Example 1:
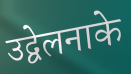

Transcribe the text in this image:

उद्वेलनाके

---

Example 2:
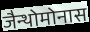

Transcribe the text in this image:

जैन्थोमोनास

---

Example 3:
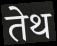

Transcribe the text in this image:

तेथ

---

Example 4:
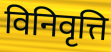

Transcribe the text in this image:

विनिवृत्ति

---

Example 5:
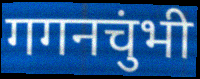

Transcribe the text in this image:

गगनचुंभी